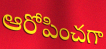
ఆరోపించగా